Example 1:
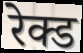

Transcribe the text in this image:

रेक्ड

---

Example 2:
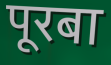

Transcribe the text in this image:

पूरबा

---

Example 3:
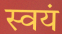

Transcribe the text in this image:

स्‍वयं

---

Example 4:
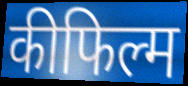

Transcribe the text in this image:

कीफिल्म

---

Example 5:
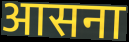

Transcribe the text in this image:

आसना